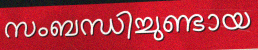
സംബന്ധിച്ചുണ്ടായ